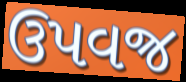
ઉપવજ્ર